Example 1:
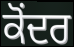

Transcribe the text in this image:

ਕੋਂਦਰ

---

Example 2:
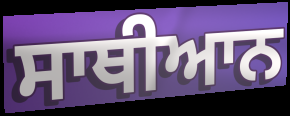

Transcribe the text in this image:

ਸਾਥੀਆਨ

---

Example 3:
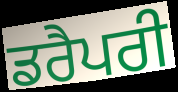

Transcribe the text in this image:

ਡਰੈਪਰੀ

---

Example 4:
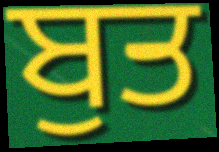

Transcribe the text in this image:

ਬੁਤ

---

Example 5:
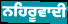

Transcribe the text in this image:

ਨਹਿਰੂਵਾਦੀ